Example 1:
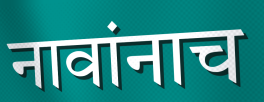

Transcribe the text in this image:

नावांनाच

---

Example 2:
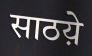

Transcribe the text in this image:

साठय़े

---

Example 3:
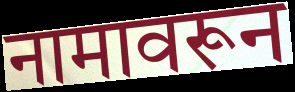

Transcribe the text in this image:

नामावरून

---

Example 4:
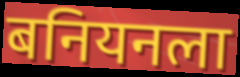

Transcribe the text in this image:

बनियनला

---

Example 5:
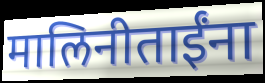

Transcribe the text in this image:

मालिनीताईंना